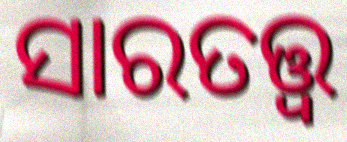
ସାରତତ୍ତ୍ଵ